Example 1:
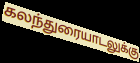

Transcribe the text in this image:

கலந்துரையாடலுக்கு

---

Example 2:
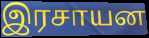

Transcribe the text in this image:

இரசாயன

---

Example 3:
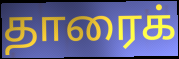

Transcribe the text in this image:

தாரைக்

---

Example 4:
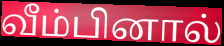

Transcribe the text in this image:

வீம்பினால்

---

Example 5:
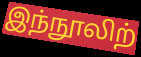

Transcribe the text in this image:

இந்நூலிற்